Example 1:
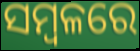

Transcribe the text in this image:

ସମ୍ବଳରେ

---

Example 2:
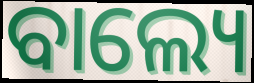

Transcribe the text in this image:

ବାଲ୍ୟେ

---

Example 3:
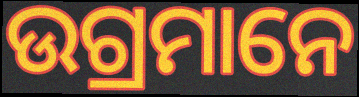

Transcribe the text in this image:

ଉଗ୍ରମାନେ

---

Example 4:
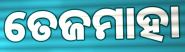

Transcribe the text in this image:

ତେଜମାହା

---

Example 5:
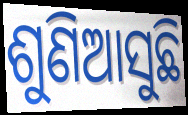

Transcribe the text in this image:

ଶୁଣିଆସୁଛି